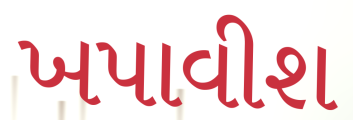
ખપાવીશ